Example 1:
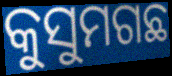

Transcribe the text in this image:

କୁସୁମଗଛ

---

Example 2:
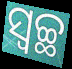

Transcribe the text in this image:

ସ୍ୱଚ୍ଛ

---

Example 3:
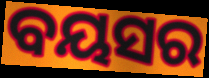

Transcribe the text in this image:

ବୟସର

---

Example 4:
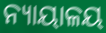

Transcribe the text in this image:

ନ୍ୟାୟାଳୟ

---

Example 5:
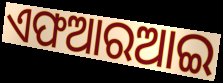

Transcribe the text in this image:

ଏଫଆରଆଇ